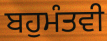
ਬਹੁਮੰਤਵੀ